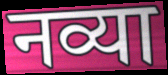
नव्‍या